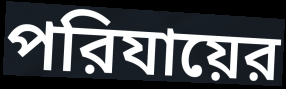
পরিযায়ের